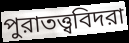
পুরাতত্ত্ববিদরা